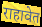
राहावेत